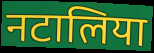
नटालिया